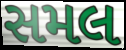
સમલ